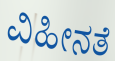
ವಿಹೀನತೆ